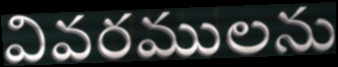
వివరములను